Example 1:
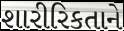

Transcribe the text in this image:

શારીરિકતાને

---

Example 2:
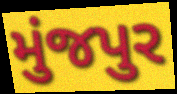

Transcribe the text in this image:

મુંજપુર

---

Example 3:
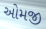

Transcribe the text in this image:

ઓમજી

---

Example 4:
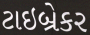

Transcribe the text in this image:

ટાઇબ્રેકર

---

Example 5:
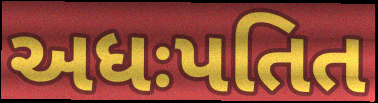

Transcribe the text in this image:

અધઃપતિત